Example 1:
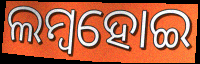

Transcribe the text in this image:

ଲମ୍ୱହୋଇ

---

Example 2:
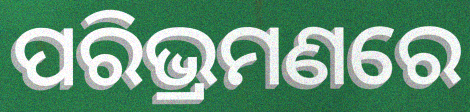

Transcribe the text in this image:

ପରିଭ୍ରମଣରେ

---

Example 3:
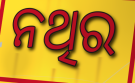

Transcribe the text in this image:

ନଥିର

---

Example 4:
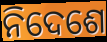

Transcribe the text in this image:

ନିଦେଶେ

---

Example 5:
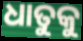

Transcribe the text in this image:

ଧାତୁକୁ